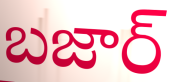
బజార్